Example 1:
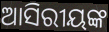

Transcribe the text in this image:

ଆସିରୀୟଙ୍କ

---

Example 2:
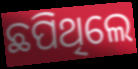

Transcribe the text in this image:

ଛପିଥିଲେ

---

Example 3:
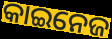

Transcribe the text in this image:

କାଇନେଜ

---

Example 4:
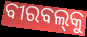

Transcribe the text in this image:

ବୀରବଲ୍‌କୁ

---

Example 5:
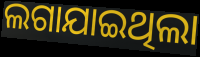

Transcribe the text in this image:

ଲଗାଯାଇଥିଲା